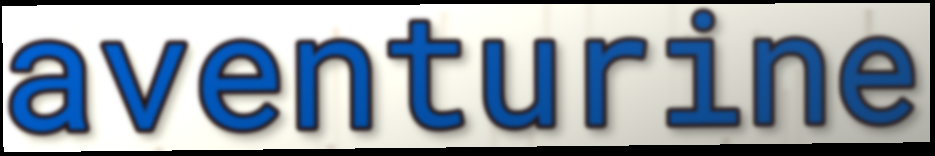
aventurine